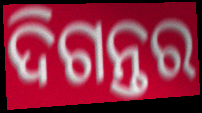
ଦିଗନ୍ତର